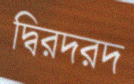
দ্বিরদরদ